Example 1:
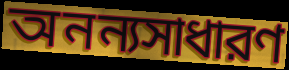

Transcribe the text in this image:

অনন্যসাধারণ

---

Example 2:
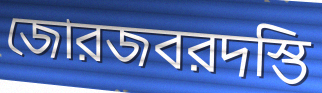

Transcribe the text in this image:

জোরজবরদস্তি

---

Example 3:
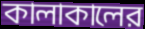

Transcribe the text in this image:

কালাকালের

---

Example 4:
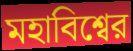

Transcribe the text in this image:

মহাবিশ্বের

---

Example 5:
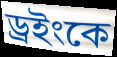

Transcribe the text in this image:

ড্রইংকে